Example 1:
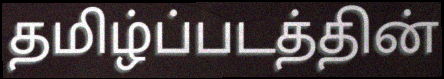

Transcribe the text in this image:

தமிழ்ப்படத்தின்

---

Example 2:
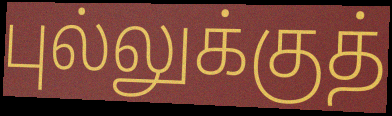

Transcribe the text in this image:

புல்லுக்குத்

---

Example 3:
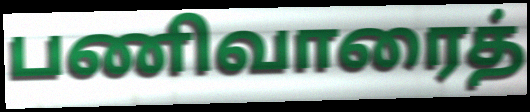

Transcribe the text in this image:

பணிவாரைத்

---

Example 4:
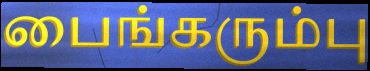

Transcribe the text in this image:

பைங்கரும்பு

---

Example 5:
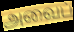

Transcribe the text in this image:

அவைப்